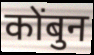
कोंबुन